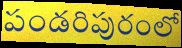
పండరిపురంలో